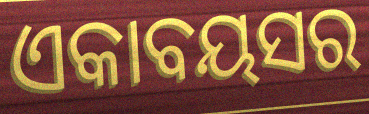
ଏକାବୟସର